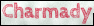
Charmady